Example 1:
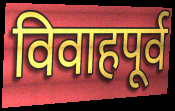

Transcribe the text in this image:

विवाहपूर्व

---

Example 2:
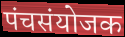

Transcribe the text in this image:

पंचसंयोजक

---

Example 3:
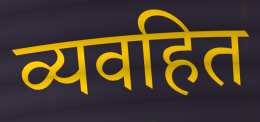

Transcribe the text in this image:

व्यवहित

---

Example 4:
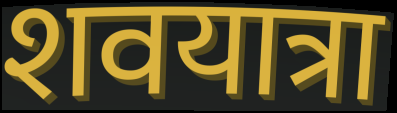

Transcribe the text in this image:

शवयात्रा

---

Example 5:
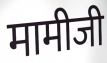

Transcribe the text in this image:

मामीजी